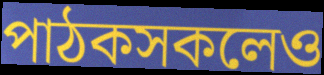
পাঠকসকলেও